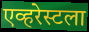
एव्हरेस्टला